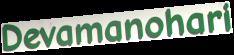
Devamanohari